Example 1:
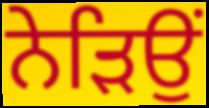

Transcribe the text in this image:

ਨੇੜਿਉਂ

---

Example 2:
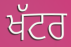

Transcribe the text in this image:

ਖੱਟਰ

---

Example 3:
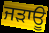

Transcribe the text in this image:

ਜੜਾਊ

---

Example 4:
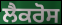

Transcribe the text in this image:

ਲੈਕਰੋਸ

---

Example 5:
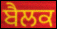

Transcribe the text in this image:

ਬੈਲਕ